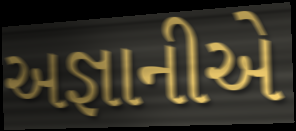
અજ્ઞાનીએ